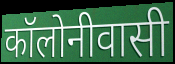
कॉलोनीवासी